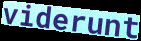
viderunt